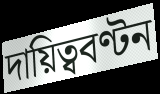
দায়িত্ববণ্টন